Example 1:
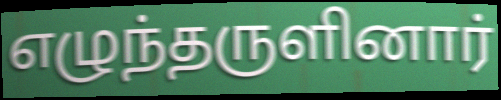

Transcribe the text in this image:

எழுந்தருளினார்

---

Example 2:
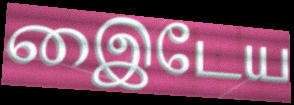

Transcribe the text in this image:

இைடேய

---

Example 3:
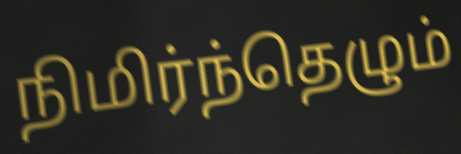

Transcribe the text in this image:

நிமிர்ந்தெழும்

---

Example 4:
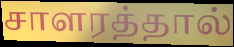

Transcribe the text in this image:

சாளரத்தால்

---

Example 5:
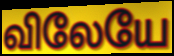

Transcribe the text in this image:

விலேயே